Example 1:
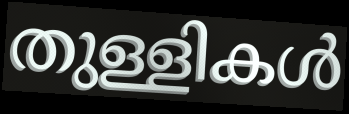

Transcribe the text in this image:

തുള്ളികൾ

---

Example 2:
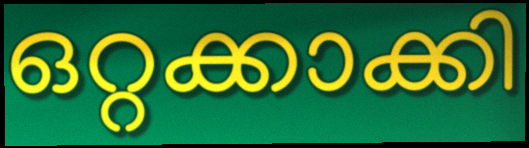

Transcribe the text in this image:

ഒറ്റക്കാക്കി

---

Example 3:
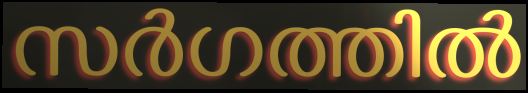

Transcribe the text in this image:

സർഗത്തിൽ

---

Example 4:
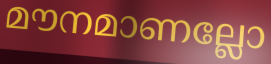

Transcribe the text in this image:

മൗനമാണല്ലോ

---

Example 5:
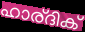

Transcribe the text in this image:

ഹാര്ദിക്